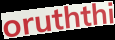
oruththi